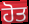
ਹੋਤ